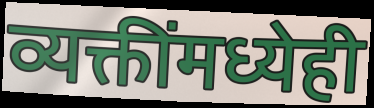
व्यक्तींमध्येही